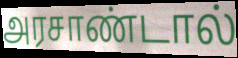
அரசாண்டால்